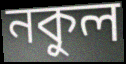
নকুল